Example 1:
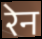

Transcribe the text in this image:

रेन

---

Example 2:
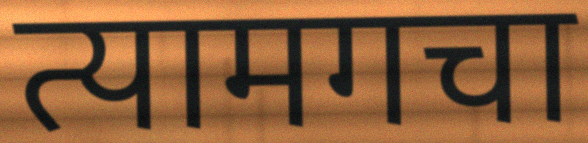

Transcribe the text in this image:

त्यामगचा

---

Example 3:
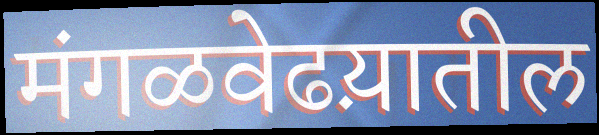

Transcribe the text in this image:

मंगळवेढय़ातील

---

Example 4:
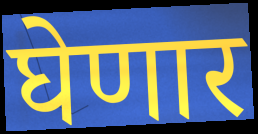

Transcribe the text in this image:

घेणार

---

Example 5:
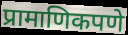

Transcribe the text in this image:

प्रामाणिकपणे